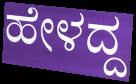
ಹೇಳದ್ದ